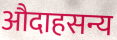
औदाहसन्य